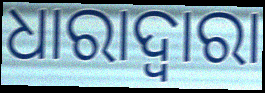
ଧାରାଦ୍ୱାରା